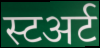
स्टअर्ट